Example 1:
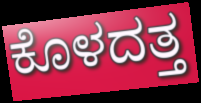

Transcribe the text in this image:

ಕೊಳದತ್ತ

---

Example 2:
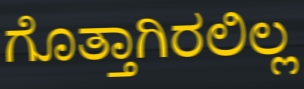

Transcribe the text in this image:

ಗೊತ್ತಾಗಿರಲಿಲ್ಲ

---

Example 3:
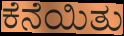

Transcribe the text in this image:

ಕೆನೆಯಿತು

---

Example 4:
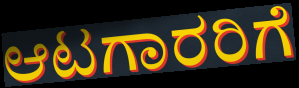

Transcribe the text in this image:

ಆಟಗಾರರಿಗೆ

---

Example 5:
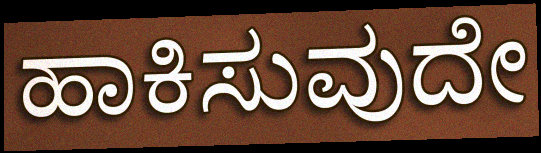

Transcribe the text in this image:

ಹಾಕಿಸುವುದೇ